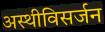
अस्थीविसर्जन